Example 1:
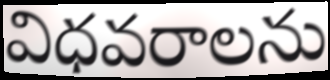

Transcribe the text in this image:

విధవరాలను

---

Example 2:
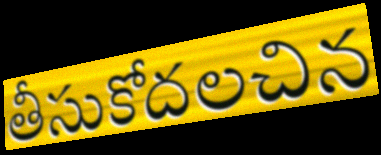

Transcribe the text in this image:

తీసుకోదలచిన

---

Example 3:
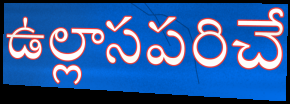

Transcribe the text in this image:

ఉల్లాసపరిచే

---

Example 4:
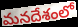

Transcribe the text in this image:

మనదేశంలో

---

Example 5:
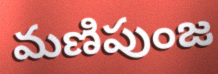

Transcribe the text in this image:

మణిపుంజ